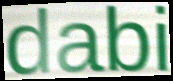
dabi